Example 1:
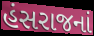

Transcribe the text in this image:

હંસરાજનાં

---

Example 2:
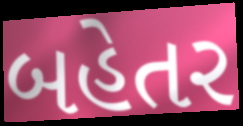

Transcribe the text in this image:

બહેતર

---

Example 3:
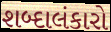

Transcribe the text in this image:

શબ્દાલંકારો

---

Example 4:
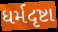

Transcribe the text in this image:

ધર્મદૃષ્ટા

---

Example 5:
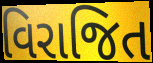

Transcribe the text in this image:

વિરાજિત